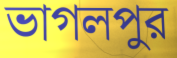
ভাগলপুর